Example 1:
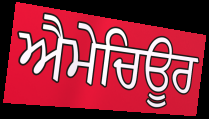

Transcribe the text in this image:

ਐਮੇਚਿਊਰ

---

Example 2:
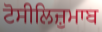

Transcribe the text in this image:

ਟੋਸੀਲਿਜ਼ੁਮਾਬ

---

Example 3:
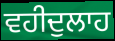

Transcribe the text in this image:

ਵਹੀਦੁਲਾਹ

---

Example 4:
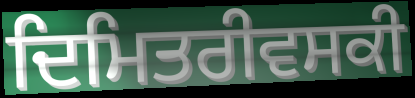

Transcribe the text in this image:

ਦਿਮਿਤਰੀਵਸਕੀ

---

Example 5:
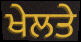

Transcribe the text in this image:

ਖੇਲਤੇ